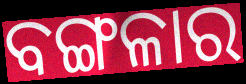
ବଙ୍ଗଳାର